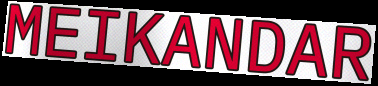
MEIKANDAR